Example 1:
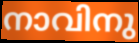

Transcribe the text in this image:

നാവിനു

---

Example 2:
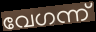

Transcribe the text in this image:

വേഗന്ന്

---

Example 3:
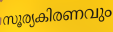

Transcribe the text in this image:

സൂര്യകിരണവും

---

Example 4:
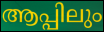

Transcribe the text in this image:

ആപ്പിലും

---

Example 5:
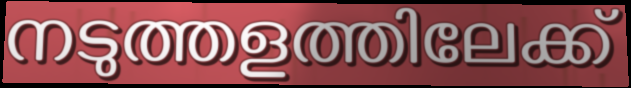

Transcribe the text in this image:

നടുത്തളത്തിലേക്ക്